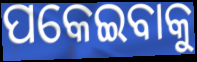
ପକେଇବାକୁ